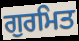
ਗੁਰਮਿਤ